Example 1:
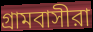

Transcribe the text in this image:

গ্রামবাসীরা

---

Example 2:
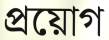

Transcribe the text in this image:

প্রয়োগ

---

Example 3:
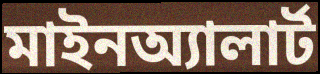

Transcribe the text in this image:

মাইনঅ্যালার্ট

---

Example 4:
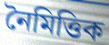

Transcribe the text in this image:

নৈমিত্তিক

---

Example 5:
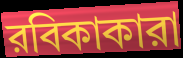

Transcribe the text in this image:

রবিকাকারা